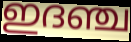
ഇദഞ്ച